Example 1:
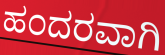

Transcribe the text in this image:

ಹಂದರವಾಗಿ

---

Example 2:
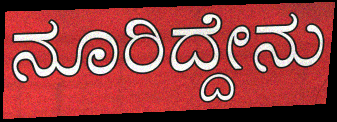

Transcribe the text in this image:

ನೂರಿದ್ದೇನು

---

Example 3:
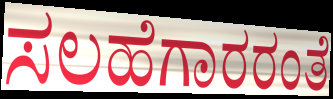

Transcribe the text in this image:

ಸಲಹೆಗಾರರಂತೆ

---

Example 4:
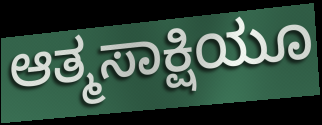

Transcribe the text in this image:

ಆತ್ಮಸಾಕ್ಷಿಯೂ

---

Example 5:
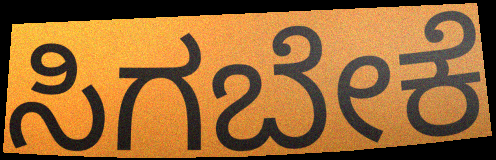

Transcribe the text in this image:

ಸಿಗಬೇಕೆ